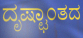
ದೃಷ್ಟಾಂತದ